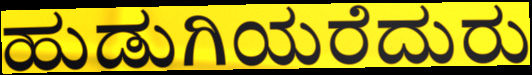
ಹುಡುಗಿಯರೆದುರು